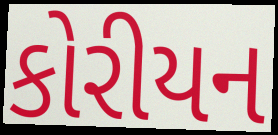
કોરીયન